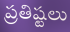
ప్రతిష్టలు